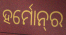
ହର୍ମୋନ୍‌ର